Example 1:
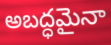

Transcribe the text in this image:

అబద్ధమైనా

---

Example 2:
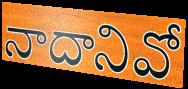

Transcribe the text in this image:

నాదానివో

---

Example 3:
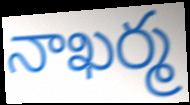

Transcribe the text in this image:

నాఖర్మ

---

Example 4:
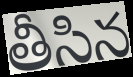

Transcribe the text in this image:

తీసిన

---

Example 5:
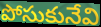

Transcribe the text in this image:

పోసుకునేవి